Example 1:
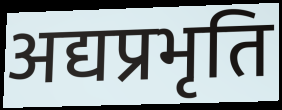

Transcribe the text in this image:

अद्यप्रभृति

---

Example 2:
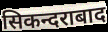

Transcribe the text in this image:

सिकन्दराबाद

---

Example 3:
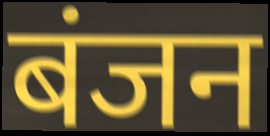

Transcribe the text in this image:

बंजन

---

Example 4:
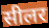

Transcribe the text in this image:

सीलर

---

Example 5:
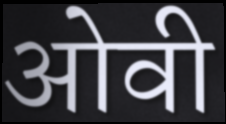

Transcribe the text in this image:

ओवी